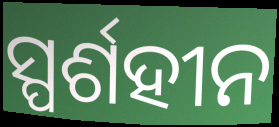
ସ୍ପର୍ଶହୀନ